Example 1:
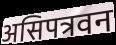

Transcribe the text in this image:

असिपत्रवन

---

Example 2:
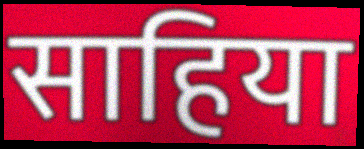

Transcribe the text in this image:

साहिया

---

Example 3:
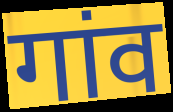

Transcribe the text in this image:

गांव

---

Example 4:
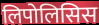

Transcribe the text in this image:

लिपोलिसिस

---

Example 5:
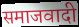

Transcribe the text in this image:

समाजवादी